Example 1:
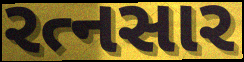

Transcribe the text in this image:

રત્નસાર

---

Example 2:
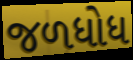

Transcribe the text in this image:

જળધોધ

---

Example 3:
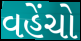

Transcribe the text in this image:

વહેંચો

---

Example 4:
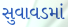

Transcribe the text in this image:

સુવાવડમાં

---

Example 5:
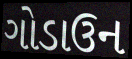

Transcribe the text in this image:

ગોડાઉન